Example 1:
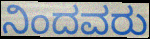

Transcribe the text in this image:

ನಿಂದವರು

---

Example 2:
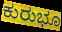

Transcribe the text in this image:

ಕುರುಭೂ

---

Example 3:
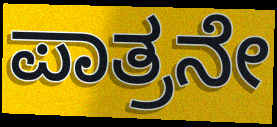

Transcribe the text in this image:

ಪಾತ್ರನೇ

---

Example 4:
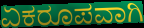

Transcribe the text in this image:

ಏಕರೂಪವಾಗಿ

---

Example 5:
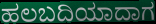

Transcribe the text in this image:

ಹಲಬದಿಯಾದಾಗ